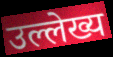
उल्लेख्य